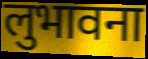
लुभावना